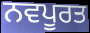
ਨਵਪੂਰਤ